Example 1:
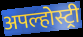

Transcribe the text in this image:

अपल्होस्ट्री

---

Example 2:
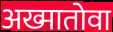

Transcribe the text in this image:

अख्मातोवा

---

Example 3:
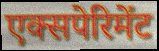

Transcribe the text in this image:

एक्सपेरिमेंट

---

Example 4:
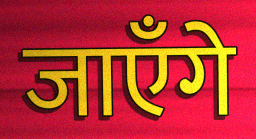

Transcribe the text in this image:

जाएँगे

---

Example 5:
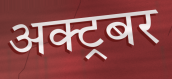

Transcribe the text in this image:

अक्ट्रबर